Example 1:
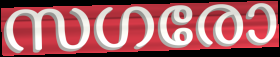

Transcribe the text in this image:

സഗരോ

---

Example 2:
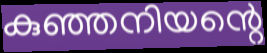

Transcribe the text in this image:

കുഞ്ഞനിയന്റെ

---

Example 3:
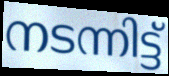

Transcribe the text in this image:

നടന്നിട്ട്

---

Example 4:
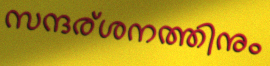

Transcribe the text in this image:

സന്ദര്ശനത്തിനും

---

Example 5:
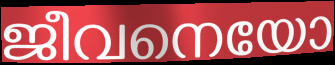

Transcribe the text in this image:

ജീവനെയോ